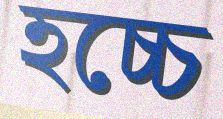
হচ্চে